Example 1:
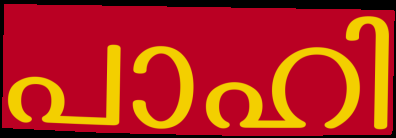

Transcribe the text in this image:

പാഹി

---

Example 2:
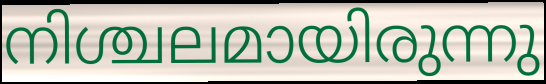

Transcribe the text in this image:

നിശ്ചലമായിരുന്നു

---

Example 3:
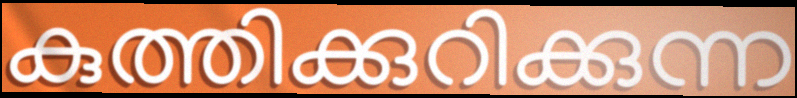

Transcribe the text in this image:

കുത്തിക്കുറിക്കുന്ന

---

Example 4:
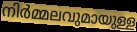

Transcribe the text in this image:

നിർമ്മലവുമായുള്ള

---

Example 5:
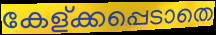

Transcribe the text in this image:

കേള്ക്കപ്പെടാതെ